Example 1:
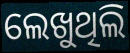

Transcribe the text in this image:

ଲେଖୁଥିଲି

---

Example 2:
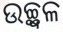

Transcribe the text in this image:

ଉଚ୍ଛ୍ଵଳ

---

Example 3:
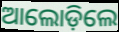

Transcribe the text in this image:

ଆଲୋଡ଼ିଲେ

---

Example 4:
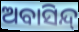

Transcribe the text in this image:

ଅବାସିନ୍ଦ୍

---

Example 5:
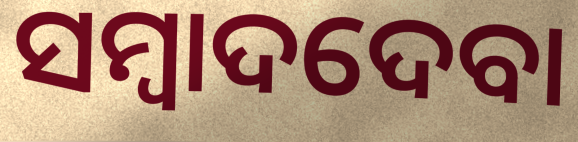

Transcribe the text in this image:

ସମ୍ବାଦଦେବା